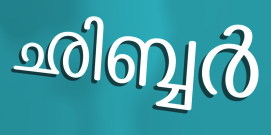
ഛിബ്ബർ